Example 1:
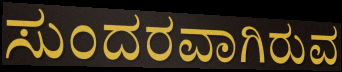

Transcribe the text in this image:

ಸುಂದರವಾಗಿರುವ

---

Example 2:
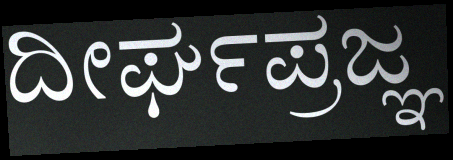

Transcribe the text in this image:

ದೀರ್ಘಪ್ರಜ್ಞ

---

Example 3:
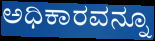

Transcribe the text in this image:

ಅಧಿಕಾರವನ್ನೂ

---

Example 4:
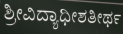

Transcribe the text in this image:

ಶ್ರೀವಿದ್ಯಾಧೀಶತೀರ್ಥ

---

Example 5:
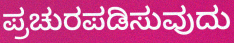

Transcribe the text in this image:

ಪ್ರಚುರಪಡಿಸುವುದು